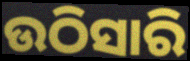
ଉଠିସାରି